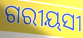
ଗରୀୟସୀ